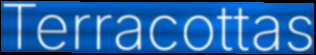
Terracottas